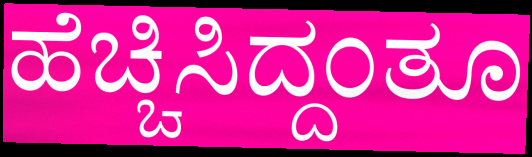
ಹೆಚ್ಚಿಸಿದ್ದಂತೂ